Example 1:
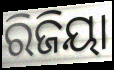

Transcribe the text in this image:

ରିଜିୟା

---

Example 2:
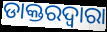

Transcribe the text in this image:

ଡାକ୍ତରଦ୍ୱାରା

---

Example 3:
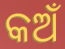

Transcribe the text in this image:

କଅଁ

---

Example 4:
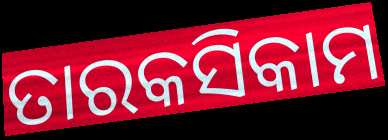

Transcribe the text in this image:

ତାରକସିକାମ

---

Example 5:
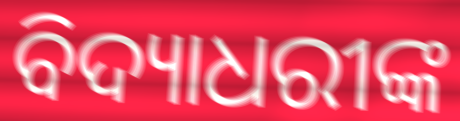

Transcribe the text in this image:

ବିଦ୍ୟାଧରୀଙ୍କ